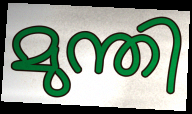
മുന്തി